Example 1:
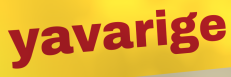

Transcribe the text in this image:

yavarige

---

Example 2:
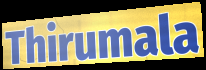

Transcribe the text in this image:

Thirumala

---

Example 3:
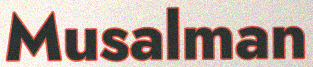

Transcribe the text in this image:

Musalman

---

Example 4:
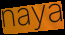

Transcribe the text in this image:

naya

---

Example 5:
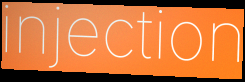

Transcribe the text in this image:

injection